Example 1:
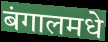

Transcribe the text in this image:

बंगालमधे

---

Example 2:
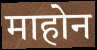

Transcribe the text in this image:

माहोन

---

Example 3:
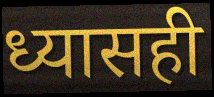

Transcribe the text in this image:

ध्यासही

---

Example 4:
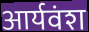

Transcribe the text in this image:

आर्यवंश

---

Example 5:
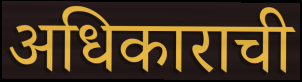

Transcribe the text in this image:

अधिकाराची